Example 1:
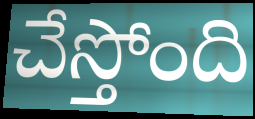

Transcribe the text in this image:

చేస్తోంది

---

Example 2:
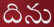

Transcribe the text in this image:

దిను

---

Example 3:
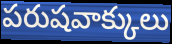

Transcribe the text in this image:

పరుషవాక్కులు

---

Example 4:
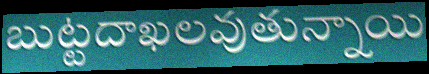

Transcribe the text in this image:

బుట్టదాఖలవుతున్నాయి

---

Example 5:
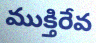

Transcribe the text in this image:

ముక్తిరేవ